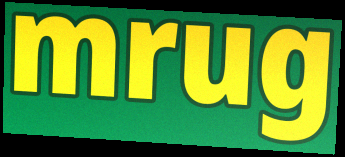
mrug